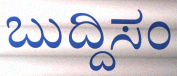
ಬುದ್ದಿಸಂ